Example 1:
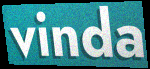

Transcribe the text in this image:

vinda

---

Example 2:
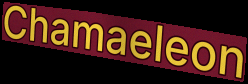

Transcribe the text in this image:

Chamaeleon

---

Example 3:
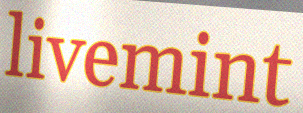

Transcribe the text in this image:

livemint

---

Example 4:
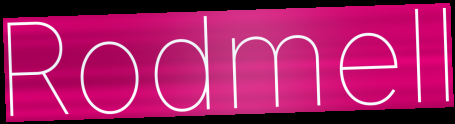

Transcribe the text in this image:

Rodmell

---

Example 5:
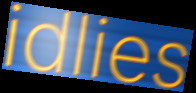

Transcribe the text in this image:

idlies